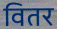
वितर